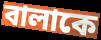
বালাকে